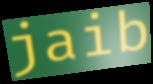
jaib